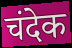
चंदेक